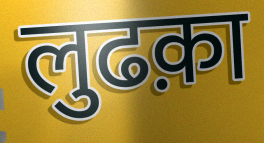
लुढक़ा